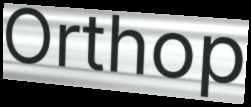
Orthop